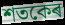
শতকেৰ